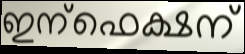
ഇന്ഫെക്ഷന്